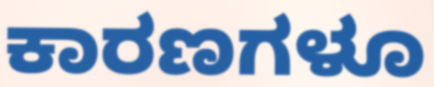
ಕಾರಣಗಳೂ